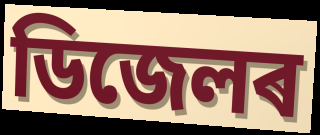
ডিজেলৰ